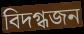
বিদগ্ধজন